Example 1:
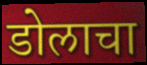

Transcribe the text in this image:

डोलाचा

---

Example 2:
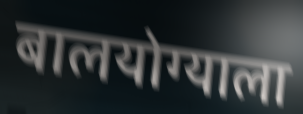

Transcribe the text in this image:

बालयोग्याला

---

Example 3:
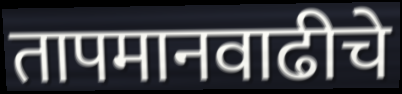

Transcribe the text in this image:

तापमानवाढीचे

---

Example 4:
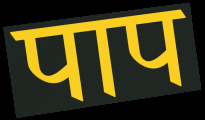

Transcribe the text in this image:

पाप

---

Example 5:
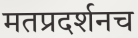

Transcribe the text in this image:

मतप्रदर्शनच